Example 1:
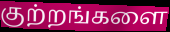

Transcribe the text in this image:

குற்றங்களை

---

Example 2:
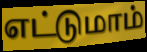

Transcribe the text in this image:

எட்டுமாம்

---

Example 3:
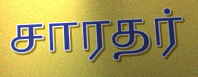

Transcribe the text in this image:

சாரதர்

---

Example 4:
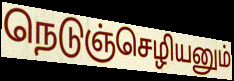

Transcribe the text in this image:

நெடுஞ்செழியனும்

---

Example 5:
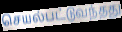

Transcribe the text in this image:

செயல்பட்டுவந்தது